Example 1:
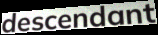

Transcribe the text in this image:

descendant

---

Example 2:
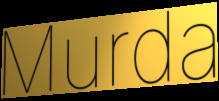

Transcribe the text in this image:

Murda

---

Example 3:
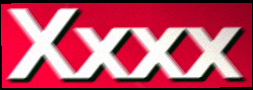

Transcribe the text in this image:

Xxxx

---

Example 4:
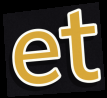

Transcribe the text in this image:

et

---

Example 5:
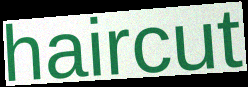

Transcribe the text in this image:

haircut